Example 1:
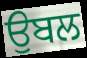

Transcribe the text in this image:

ਉਬਲ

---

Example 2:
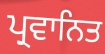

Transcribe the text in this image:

ਪ੍ਰਵਾਨਿਤ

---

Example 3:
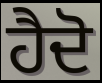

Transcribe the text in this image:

ਹੈਦੋ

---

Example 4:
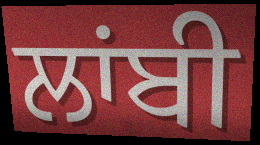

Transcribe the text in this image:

ਲਾਂਬੀ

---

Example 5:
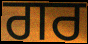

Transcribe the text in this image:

ਗਰ